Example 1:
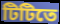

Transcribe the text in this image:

টিটিতে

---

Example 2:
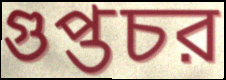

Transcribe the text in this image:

গুপ্তচর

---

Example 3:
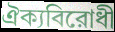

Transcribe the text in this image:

ঐক্যবিরোধী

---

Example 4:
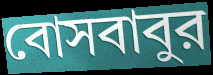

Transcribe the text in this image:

বোসবাবুর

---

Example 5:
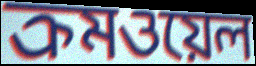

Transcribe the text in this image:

ক্রমওয়েল